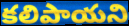
కలిపాయని